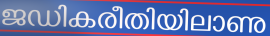
ജഡികരീതിയിലാണു